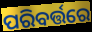
ପରିବର୍ତ୍ତରେ